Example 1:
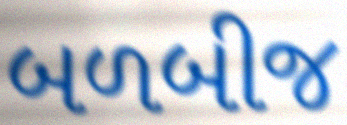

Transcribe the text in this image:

બળબીજ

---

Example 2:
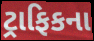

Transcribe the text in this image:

ટ્રાફિકના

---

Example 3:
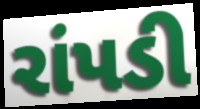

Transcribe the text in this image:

રાંપડી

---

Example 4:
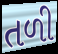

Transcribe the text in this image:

તળી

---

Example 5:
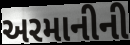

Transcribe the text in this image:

અરમાનીની